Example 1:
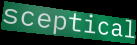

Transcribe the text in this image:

sceptical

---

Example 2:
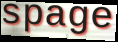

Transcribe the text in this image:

spage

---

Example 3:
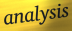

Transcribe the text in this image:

analysis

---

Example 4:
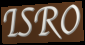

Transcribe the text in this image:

ISRO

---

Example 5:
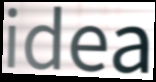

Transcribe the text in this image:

idea